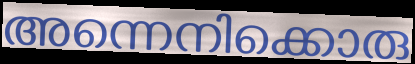
അന്നെനിക്കൊരു